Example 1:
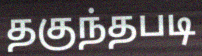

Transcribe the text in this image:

தகுந்தபடி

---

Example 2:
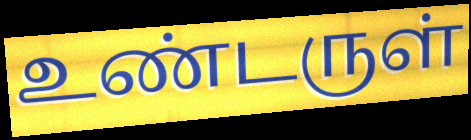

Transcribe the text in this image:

உண்டருள்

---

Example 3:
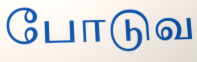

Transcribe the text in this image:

போடுவ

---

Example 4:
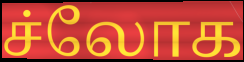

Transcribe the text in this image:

ச்லோக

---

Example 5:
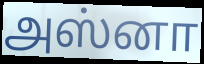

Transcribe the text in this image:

அஸ்னா